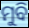
ମୁବି